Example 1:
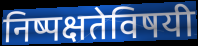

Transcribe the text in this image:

निष्पक्षतेविषयी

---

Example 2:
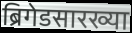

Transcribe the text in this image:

ब्रिगेडसारख्या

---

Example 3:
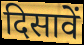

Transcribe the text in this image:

दिसावें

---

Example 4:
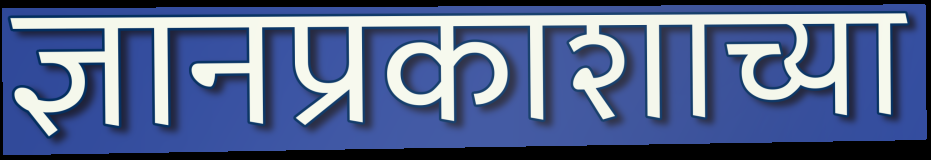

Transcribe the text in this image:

ज्ञानप्रकाशाच्या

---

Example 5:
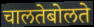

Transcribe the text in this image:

चालतेबोलते